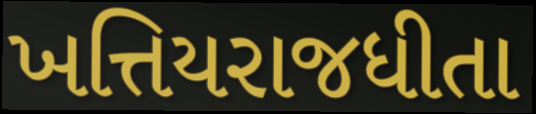
ખત્તિયરાજધીતા